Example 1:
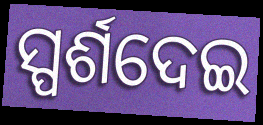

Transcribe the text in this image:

ସ୍ପର୍ଶଦେଇ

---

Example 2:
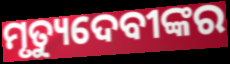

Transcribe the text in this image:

ମୃତ୍ୟୁଦେବୀଙ୍କର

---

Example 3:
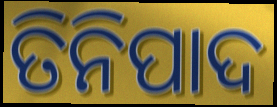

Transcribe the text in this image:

ତିନିପାଦ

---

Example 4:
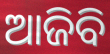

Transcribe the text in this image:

ଆଜିବି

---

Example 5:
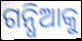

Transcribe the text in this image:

ଗନ୍ଧିଆକୁ